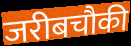
जरीबचौकी